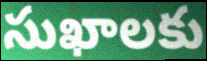
సుఖాలకు